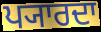
ਪ੍ਯਾਰਦਾ